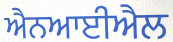
ਐਨਆਈਐਲ